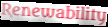
Renewability